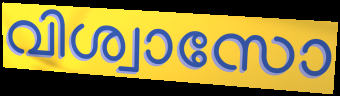
വിശ്വാസോ